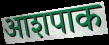
आशपाक